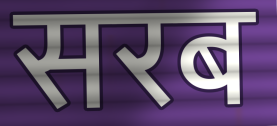
सरब